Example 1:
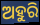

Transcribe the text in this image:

ଅହୁରି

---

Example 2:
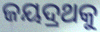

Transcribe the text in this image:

ଜୟଦ୍ରଥକୁ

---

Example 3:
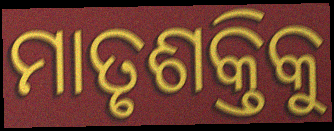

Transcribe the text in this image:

ମାତୃଶକ୍ତିକୁ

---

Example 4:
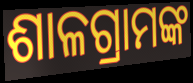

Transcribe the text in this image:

ଶାଳଗ୍ରାମଙ୍କ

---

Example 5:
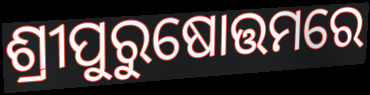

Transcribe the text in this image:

ଶ୍ରୀପୁରୁଷୋତ୍ତମରେ